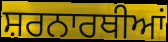
ਸ਼ਰਨਾਰਥੀਆਂ